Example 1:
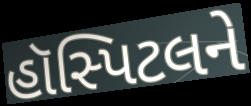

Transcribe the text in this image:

હૉસ્પિટલને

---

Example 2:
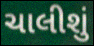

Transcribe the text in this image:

ચાલીશું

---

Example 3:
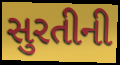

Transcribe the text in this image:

સુરતીની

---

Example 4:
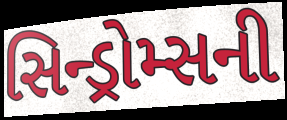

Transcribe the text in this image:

સિન્ડ્રોમ્સની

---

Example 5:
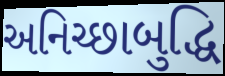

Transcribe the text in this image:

અનિચ્છાબુદ્ધિ